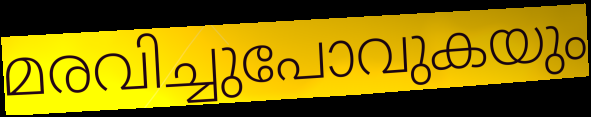
മരവിച്ചുപോവുകയും